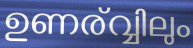
ഉണര്വ്വിലും